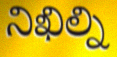
నిఖిల్ని